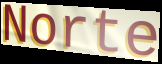
Norte